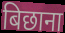
बिछाना